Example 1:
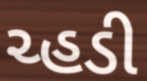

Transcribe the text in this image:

ચ્હડી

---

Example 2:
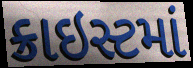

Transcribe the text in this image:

ક્રાઇસ્ટમાં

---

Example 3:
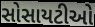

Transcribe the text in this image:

સોસાયટીઓ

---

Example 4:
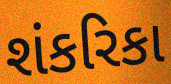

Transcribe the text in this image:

શંકરિકા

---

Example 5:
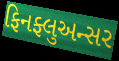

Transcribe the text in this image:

ફિનફ્લુઅન્સર